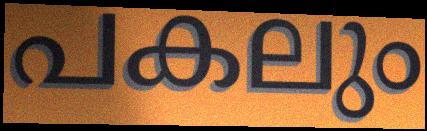
പകലും